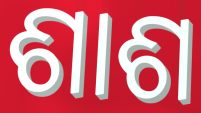
ଶାଶ